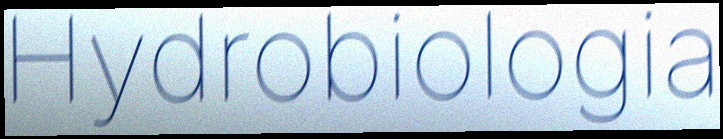
Hydrobiologia